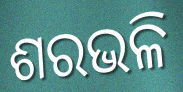
ଶରଭଳି